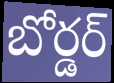
బోర్డర్